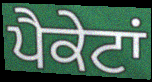
ਪੈਕੇਟਾਂ